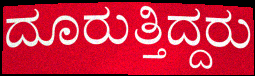
ದೂರುತ್ತಿದ್ದರು